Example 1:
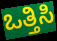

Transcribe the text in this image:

ಒತ್ತಿಸಿ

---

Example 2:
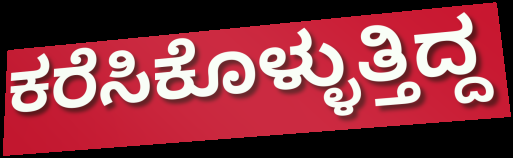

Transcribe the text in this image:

ಕರೆಸಿಕೊಳ್ಳುತ್ತಿದ್ದ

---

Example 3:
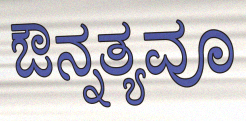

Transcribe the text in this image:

ಔನ್ನತ್ಯವೂ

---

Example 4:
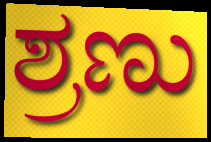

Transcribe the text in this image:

ಶ್ರಣು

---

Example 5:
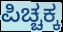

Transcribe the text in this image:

ಪಿಚ್ಚಕ್ಕ